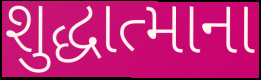
શુદ્ધાત્માના